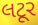
લટૂર